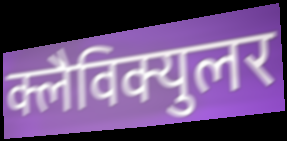
क्लैविक्युलर